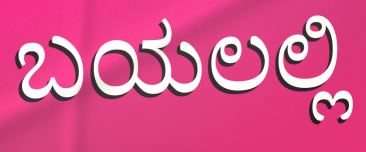
ಬಯಲಲ್ಲಿ